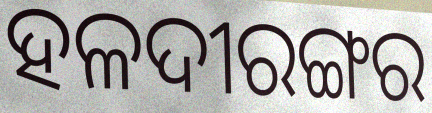
ହଳଦୀରଙ୍ଗର